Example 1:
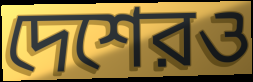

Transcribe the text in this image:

দেশেরও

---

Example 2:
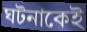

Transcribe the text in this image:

ঘটনাকেই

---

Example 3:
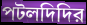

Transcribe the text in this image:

পটলদিদির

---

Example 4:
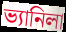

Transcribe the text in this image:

ভ্যানিলা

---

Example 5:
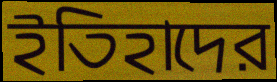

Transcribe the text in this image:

ইতিহাদের